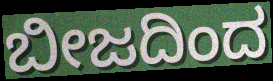
ಬೀಜದಿಂದ